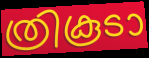
ത്രികൂടാ